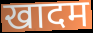
खादम